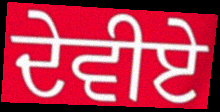
ਦੇਵੀਏ